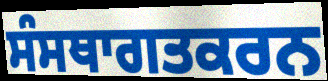
ਸੰਸਥਾਗਤਕਰਨ